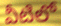
వీటిలో